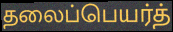
தலைப்பெயர்த்